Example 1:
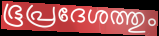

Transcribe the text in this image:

ഭൂപ്രദേശത്തും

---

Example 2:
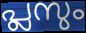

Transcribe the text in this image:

പ്ലസും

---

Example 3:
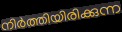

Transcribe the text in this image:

നിർത്തിയിരിക്കുന്ന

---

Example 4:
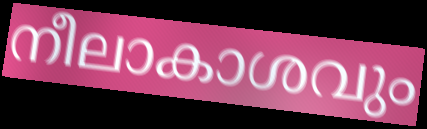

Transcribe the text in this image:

നീലാകാശവും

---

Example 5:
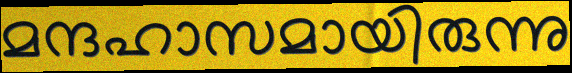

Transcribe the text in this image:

മന്ദഹാസമായിരുന്നു